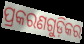
ପ୍ରକରଣଗୁଡ଼ିକର